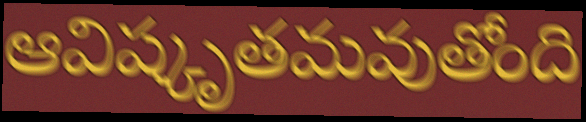
ఆవిష్కృతమవుతోంది